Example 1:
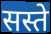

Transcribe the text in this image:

सस्ते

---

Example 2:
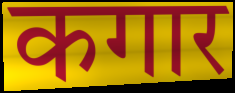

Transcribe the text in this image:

कगार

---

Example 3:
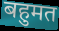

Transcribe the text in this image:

बहुमत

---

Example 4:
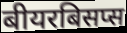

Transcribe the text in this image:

बीयरबिसप्स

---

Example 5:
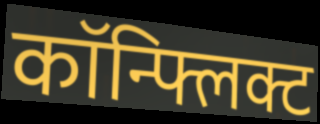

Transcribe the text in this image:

कॉन्फ्लिक्ट